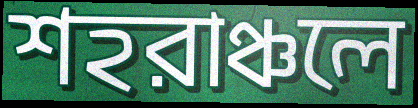
শহরাঞ্চলে